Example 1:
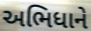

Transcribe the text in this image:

અભિધાને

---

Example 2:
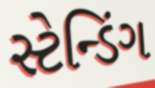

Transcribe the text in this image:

સ્ટેન્ડિંગ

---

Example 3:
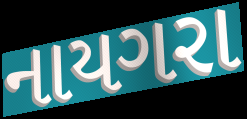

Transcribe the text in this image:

નાયગરા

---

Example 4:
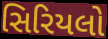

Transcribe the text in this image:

સિરિયલો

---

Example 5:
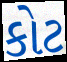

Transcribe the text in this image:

કોટ